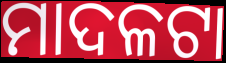
ମାଦଳଟା